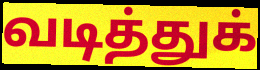
வடித்துக்